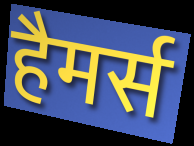
हैमर्स